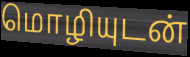
மொழியுடன்